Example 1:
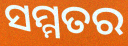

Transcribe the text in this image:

ସମ୍ମତର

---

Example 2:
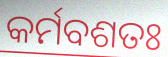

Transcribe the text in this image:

କର୍ମବଶତଃ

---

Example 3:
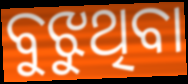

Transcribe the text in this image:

ବୁଝୁଥିବା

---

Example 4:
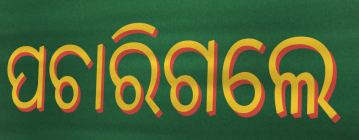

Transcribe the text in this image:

ପଚାରିଗଲେ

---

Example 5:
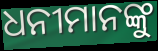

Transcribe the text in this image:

ଧନୀମାନଙ୍କୁ